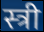
स्‍त्री